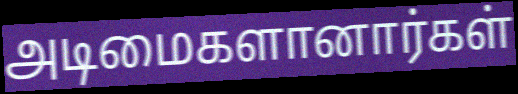
அடிமைகளானார்கள்